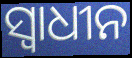
ସ୍ୱାଧୀନ